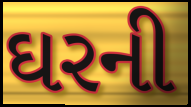
ઘરની